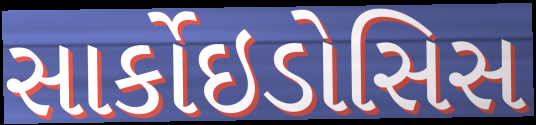
સાર્કોઇડોસિસ